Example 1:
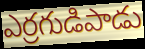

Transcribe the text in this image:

ఎర్రగుడిపాడు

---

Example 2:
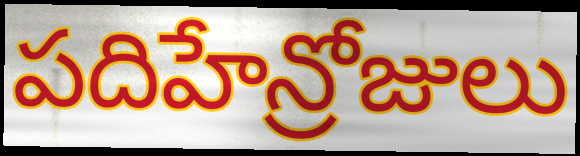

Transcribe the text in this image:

పదిహేన్రోజులు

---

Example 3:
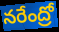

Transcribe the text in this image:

నరేంద్రో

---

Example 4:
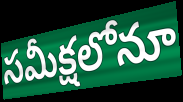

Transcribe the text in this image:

సమీక్షలోనూ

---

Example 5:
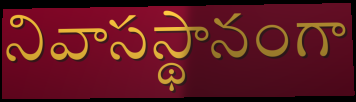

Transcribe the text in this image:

నివాసస్థానంగా